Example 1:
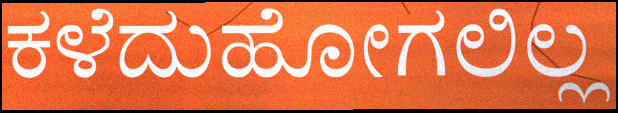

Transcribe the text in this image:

ಕಳೆದುಹೋಗಲಿಲ್ಲ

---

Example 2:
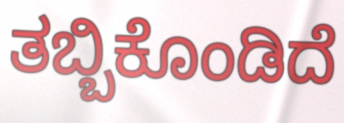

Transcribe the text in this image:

ತಬ್ಬಿಕೊಂಡಿದೆ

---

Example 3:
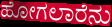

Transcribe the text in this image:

ಹೋಗಲಾರೆನು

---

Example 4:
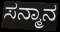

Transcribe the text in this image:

ಸನ್ಮಾನ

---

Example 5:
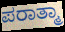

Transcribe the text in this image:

ಪರಾತ್ಮಾ